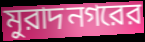
মুরাদনগরের